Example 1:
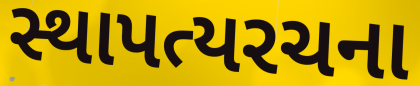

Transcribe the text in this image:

સ્થાપત્યરચના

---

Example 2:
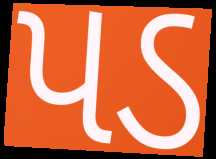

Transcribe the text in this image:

પડ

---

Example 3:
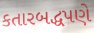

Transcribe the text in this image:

કતારબદ્ધપણે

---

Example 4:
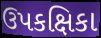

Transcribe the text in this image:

ઉપકક્ષિકા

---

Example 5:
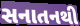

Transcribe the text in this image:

સનાતનથી